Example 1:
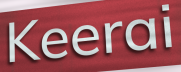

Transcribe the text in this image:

Keerai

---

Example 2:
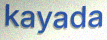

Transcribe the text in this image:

kayada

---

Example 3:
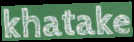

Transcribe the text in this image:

khatake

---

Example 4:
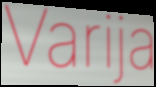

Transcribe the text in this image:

Varija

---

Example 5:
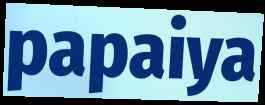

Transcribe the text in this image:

papaiya